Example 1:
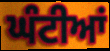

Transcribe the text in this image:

ਘੰਟੀਆਂ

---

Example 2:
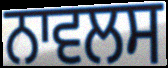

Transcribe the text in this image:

ਨਾਵਲਸ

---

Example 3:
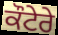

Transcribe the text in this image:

ਕੌਟੇਰੇ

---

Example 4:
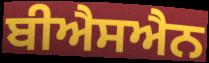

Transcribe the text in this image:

ਬੀਐਸਐਨ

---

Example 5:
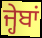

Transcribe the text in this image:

ਜ੍ਹੇਬਾਂ